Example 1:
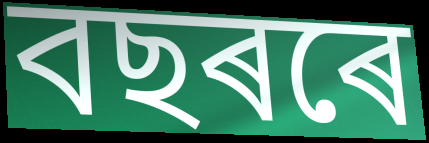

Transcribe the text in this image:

বছৰৰে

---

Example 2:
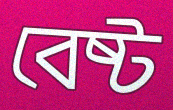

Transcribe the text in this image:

বেষ্ট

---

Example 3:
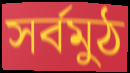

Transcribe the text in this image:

সৰ্বমুঠ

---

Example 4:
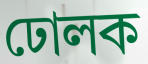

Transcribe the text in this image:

ঢোলক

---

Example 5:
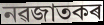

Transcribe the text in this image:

নৱজাতকৰ